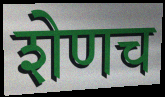
शेणच